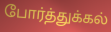
போர்த்துக்கல்